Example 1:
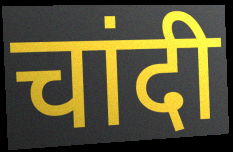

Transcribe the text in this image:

चांदी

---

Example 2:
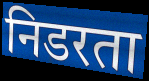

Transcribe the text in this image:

निडरता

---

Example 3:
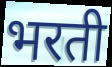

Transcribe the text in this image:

भरती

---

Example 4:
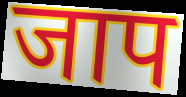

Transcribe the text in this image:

जाप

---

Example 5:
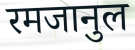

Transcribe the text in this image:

रमजानुल